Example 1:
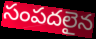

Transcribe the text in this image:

సంపదలైన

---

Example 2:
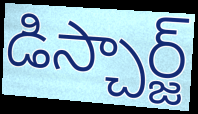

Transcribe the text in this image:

డిస్చార్జ్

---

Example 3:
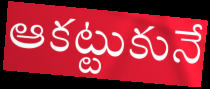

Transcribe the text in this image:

ఆకట్టుకునే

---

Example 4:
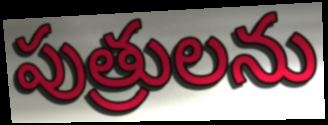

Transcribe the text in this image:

పుత్రులను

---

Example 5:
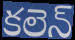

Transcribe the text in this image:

కలెన్